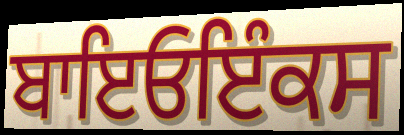
ਬਾਇਓਇੰਕਸ